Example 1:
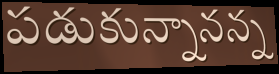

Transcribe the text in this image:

పడుకున్నానన్న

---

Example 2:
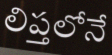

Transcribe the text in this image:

లిప్తలోనే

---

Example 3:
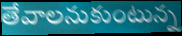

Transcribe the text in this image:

తేవాలనుకుంటున్న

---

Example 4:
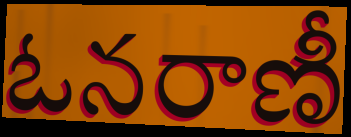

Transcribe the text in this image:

ఓనరాణీ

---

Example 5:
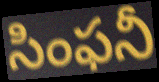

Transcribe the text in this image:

సింఫనీ